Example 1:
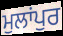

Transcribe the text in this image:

ਮੁਲਾਂਪੁਰ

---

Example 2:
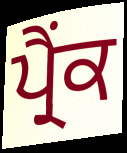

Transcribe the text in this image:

ਪ੍ਰੈਂਕ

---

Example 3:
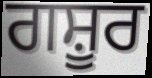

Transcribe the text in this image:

ਗਸ਼ੂਰ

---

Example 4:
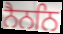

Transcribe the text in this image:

ਨੈਨਨਿ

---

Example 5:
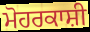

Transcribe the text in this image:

ਮੋਹਰਕਾਸ਼ੀ